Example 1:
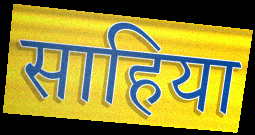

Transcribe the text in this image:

साहिया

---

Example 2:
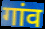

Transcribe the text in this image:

गांव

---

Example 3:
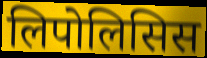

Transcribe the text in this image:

लिपोलिसिस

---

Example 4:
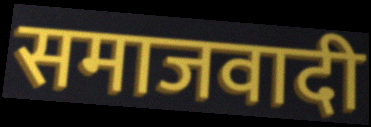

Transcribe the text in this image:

समाजवादी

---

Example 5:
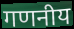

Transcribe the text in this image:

गणनीय